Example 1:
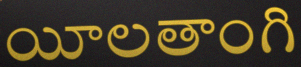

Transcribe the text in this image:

యీలతాంగి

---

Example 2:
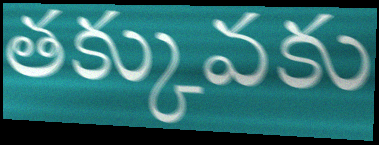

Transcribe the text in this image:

తక్కువకు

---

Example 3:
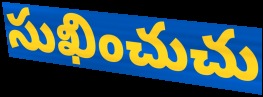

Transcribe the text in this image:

సుఖించుచు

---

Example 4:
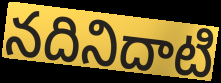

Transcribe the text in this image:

నదినిదాటి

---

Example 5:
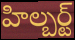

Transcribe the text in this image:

హిల్బర్ట్